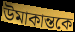
উমাকান্তকে